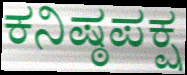
ಕನಿಷ್ಠಪಕ್ಷ